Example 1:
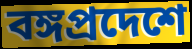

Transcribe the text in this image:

বঙ্গপ্রদেশে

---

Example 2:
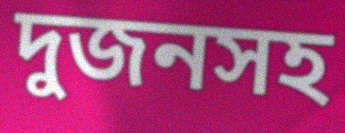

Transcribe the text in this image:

দুজনসহ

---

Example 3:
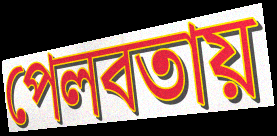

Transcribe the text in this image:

পেলবতায়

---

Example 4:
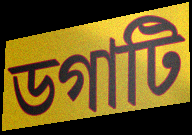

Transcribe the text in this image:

ডগাটি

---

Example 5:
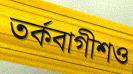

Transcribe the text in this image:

তর্কবাগীশও